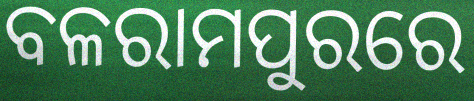
ବଳରାମପୁରରେ